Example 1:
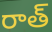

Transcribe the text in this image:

రాత్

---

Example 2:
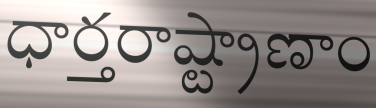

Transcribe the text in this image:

ధార్తరాష్ట్రాణాం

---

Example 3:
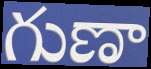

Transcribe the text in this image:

గుణా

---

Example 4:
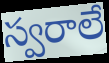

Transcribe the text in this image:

స్వరాలే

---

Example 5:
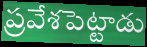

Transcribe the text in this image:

ప్రవేశపెట్టాడు